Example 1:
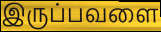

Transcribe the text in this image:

இருப்பவளை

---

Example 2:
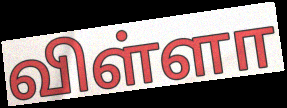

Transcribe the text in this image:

விள்ளா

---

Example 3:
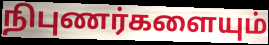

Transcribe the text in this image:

நிபுணர்களையும்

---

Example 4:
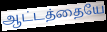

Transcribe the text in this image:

ஆட்டத்தையே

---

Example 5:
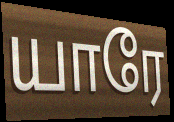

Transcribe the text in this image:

யாரே